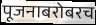
पूजनाबरोबरच